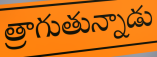
త్రాగుతున్నాడు